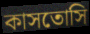
কাসতোসি